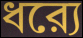
ধর‍্যে